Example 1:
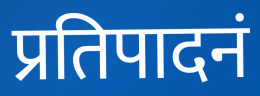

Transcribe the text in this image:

प्रतिपादनं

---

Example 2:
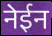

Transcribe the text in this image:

नेईन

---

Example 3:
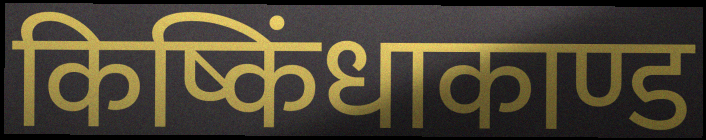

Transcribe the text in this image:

किष्किंधाकाण्ड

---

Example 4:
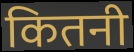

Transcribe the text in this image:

कितनी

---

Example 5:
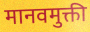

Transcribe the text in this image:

मानवमुक्ती